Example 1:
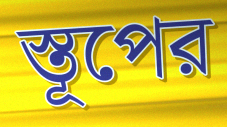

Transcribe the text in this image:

স্তূপের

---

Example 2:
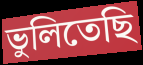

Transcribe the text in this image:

ভুলিতেছি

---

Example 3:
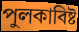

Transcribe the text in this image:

পুলকাবিষ্ট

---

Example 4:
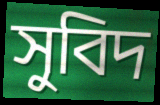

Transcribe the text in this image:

সুবিদ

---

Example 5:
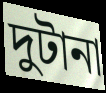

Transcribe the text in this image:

দুটানা